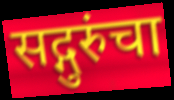
सद्गुरुंचा